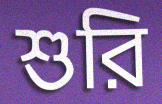
শুরি